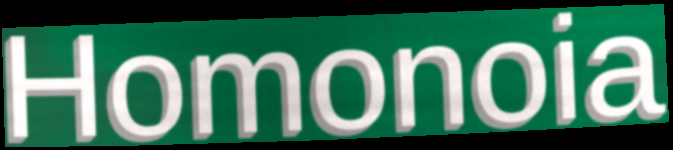
Homonoia